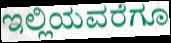
ಇಲ್ಲಿಯವರೆಗೂ